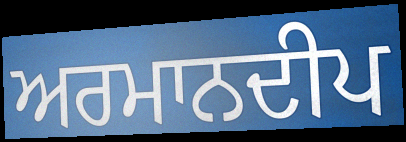
ਅਰਮਾਨਦੀਪ